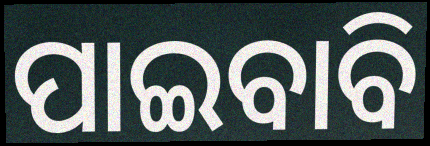
ପାଇବାବି